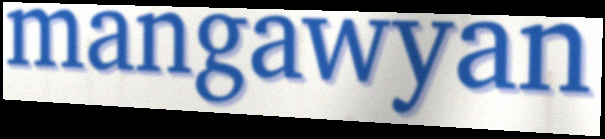
mangawyan